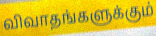
விவாதங்களுக்கும்